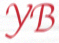
YB